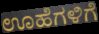
ಊಹೆಗಳಿಗೆ